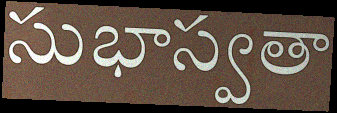
సుభాస్వతా